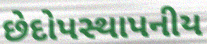
છેદોપસ્થાપનીય